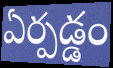
ఏర్పడ్డం